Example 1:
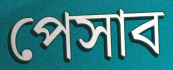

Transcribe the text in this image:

পেসাব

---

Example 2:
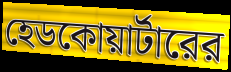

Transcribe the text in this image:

হেডকোয়ার্টারের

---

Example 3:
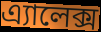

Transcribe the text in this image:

এ্যালেক্স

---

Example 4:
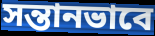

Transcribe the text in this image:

সন্তানভাবে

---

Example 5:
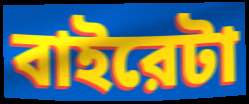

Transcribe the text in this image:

বাইরেটা